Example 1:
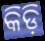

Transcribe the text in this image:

କିଡ଼ି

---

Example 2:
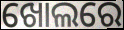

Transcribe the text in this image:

ଖୋଲରେ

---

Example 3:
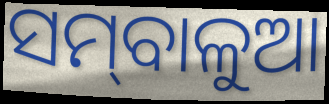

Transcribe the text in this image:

ସମ୍‌ବାଳୁଆ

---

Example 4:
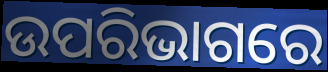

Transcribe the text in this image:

ଉପରିଭାଗରେ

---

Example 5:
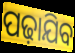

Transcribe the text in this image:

ପଢ଼ାଯିବ